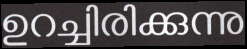
ഉറച്ചിരിക്കുന്നു